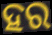
ହର